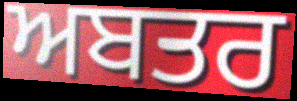
ਅਬਤਰ